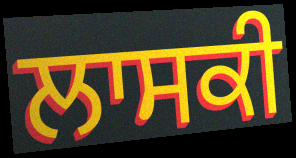
ਲਾਸਕੀ